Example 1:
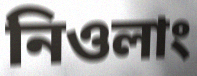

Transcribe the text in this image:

নিওলাং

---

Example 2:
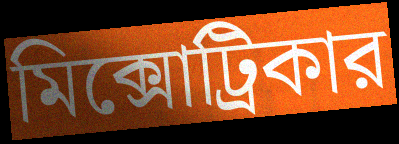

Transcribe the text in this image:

মিক্সোট্রিকার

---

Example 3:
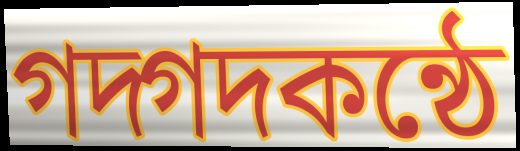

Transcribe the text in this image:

গদ্গদকন্ঠে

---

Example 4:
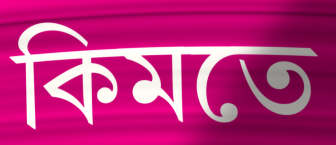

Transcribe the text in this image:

কিমতে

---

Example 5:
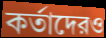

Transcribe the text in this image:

কর্তাদেরও